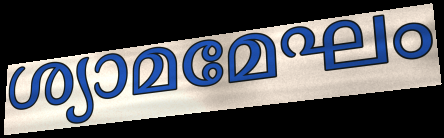
ശ്യാമമേഘം